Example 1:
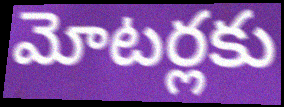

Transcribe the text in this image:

మోటర్లకు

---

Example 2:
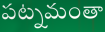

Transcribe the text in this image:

పట్నమంతా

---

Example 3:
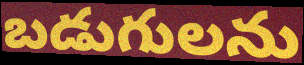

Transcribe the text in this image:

బడుగులను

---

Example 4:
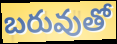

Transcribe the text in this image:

బరువుతో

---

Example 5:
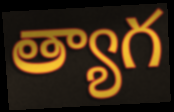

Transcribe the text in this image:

త్యాగ